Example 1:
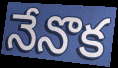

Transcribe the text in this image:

నేనొక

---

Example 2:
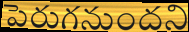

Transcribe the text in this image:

పెరుగనుందని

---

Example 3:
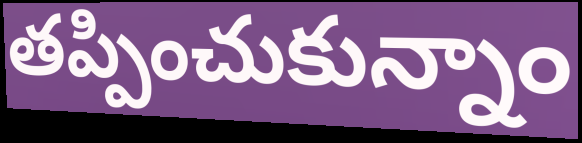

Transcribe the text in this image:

తప్పించుకున్నాం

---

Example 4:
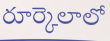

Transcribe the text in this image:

రూర్కెలాలో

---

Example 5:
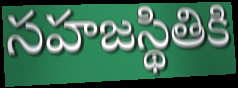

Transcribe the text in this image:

సహజస్థితికి